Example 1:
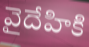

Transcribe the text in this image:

వైదేహికి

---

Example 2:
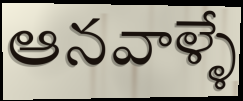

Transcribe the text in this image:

ఆనవాళ్ళే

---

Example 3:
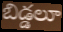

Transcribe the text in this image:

బిడ్డలూ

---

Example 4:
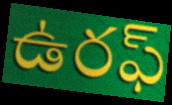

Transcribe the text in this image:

ఉరఫ్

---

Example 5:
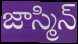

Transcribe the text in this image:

జాస్మిన్